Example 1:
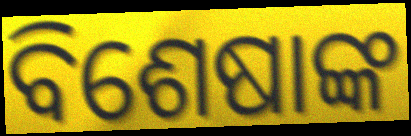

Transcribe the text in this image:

ବିଶେଷାଙ୍କ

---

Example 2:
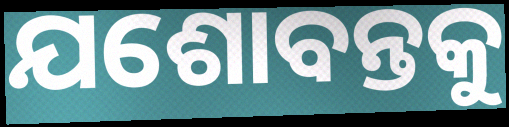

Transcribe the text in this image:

ଯଶୋବନ୍ତକୁ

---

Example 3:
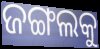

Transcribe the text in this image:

ଜଙ୍ଗଲକୁ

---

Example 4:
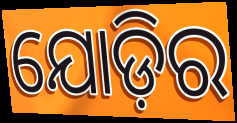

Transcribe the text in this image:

ଯୋଡ଼ିର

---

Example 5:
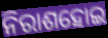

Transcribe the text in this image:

ନିରାଶହୋଇ